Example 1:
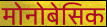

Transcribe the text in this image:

मोनोबेसिक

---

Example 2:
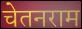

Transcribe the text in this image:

चेतनराम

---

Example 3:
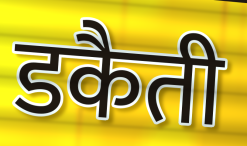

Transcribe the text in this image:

डकैती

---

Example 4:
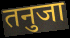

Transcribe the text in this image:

तनुजा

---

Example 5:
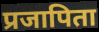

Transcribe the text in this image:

प्रजापिता